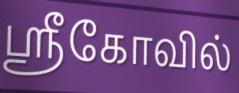
ஸ்ரீகோவில்